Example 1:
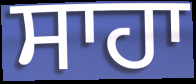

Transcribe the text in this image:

ਸਾਹਾ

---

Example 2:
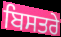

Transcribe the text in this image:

ਬਿਸਤਰੇ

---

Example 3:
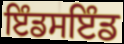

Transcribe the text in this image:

ਇੰਡਸਇੰਡ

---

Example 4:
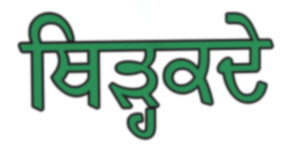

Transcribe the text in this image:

ਥਿੜ੍ਹਕਦੇ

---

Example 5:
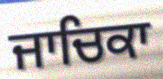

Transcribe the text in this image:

ਜਾਚਿਕਾ